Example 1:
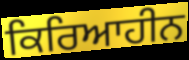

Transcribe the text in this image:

ਕਿਰਿਆਹੀਨ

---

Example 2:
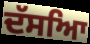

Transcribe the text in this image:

ਦੱਸਆਿ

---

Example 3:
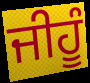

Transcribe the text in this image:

ਜੀਹੂੰ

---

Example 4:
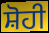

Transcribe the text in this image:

ਸ਼ੋਹੀ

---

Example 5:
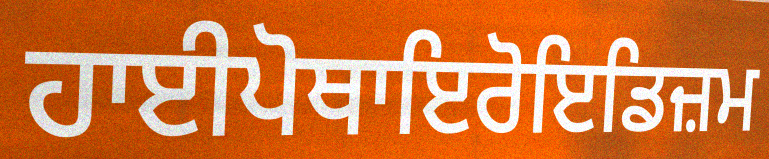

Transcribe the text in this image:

ਹਾਈਪੋਥਾਇਰੋਇਡਿਜ਼ਮ